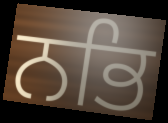
ਨਭਿ